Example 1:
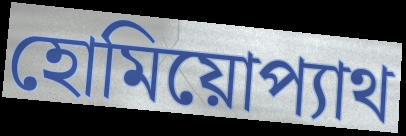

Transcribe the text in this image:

হোমিয়োপ্যাথ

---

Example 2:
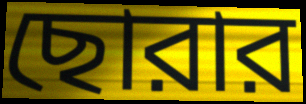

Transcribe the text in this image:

ছোরার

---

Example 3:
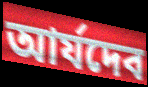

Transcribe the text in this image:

আর্যদেব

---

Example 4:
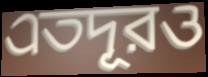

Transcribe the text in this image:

এতদূরও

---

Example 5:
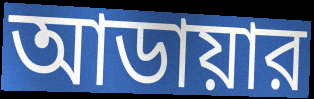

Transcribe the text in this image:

আডায়ার